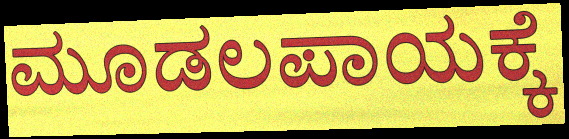
ಮೂಡಲಪಾಯಕ್ಕೆ